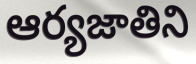
ఆర్యజాతిని